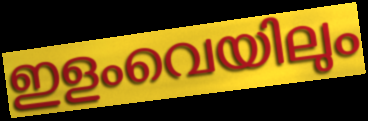
ഇളംവെയിലും